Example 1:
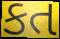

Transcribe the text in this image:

કત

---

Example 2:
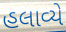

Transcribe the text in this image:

હલાવ્યે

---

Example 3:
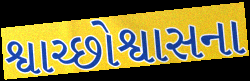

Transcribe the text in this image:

શ્વાચ્છોશ્વાસના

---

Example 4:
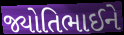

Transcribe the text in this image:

જ્યોતિભાઈને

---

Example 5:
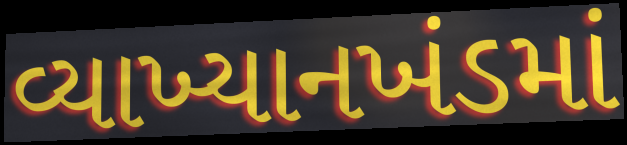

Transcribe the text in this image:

વ્યાખ્યાનખંડમાં